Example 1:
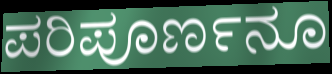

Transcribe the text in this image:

ಪರಿಪೂರ್ಣನೂ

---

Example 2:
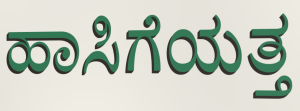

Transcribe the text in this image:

ಹಾಸಿಗೆಯತ್ತ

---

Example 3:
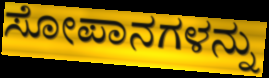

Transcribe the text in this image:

ಸೋಪಾನಗಳನ್ನು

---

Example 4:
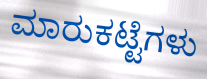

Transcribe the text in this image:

ಮಾರುಕಟ್ಟೆಗಳು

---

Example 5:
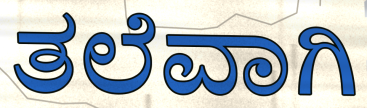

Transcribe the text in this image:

ತಲೆವಾಗಿ